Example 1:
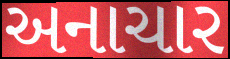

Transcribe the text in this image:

અનાચાર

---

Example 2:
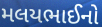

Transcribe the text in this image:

મલયભાઈનો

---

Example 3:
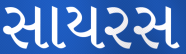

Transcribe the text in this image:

સાયરસ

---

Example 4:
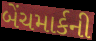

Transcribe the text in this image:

બેંચમાર્કની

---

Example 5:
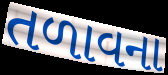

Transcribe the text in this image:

તળાવના